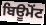
ਬਿਊਮੋਂਟ